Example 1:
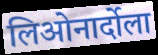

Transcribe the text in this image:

लिओनार्दोला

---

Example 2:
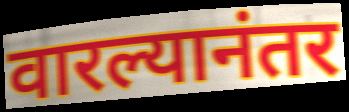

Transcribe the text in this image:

वारल्यानंतर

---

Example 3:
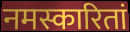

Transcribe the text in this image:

नमस्कारितां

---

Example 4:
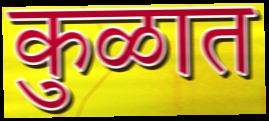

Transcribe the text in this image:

कुळात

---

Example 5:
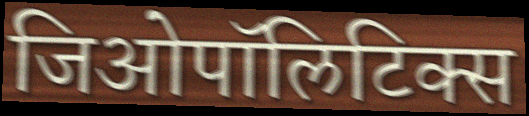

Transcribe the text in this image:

जिओपॉलिटिक्स